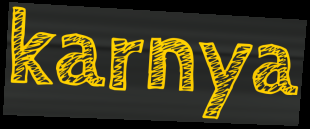
karnya